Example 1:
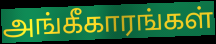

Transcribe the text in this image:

அங்கீகாரங்கள்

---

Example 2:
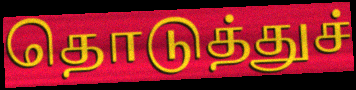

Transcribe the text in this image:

தொடுத்துச்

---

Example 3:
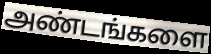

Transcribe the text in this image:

அண்டங்களை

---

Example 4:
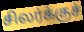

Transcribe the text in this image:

சிலர்க்குச்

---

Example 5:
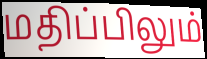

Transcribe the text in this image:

மதிப்பிலும்